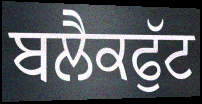
ਬਲੈਕਫੁੱਟ